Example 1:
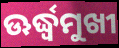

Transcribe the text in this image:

ଊର୍ଦ୍ଧ୍ବମୁଖୀ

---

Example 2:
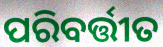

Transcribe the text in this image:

ପରିବର୍ତ୍ତୀତ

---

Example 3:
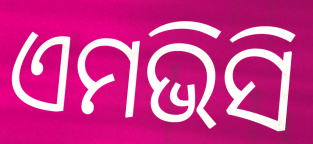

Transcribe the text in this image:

ଏମଭିସି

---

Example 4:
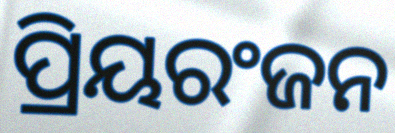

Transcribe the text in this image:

ପ୍ରିୟରଂଜନ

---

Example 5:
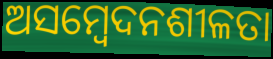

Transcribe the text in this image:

ଅସମ୍ବେଦନଶୀଳତା